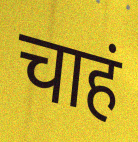
चाहं